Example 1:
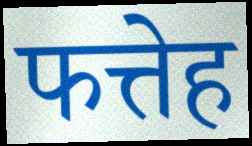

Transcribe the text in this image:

फत्तेह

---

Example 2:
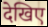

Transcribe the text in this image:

देखिए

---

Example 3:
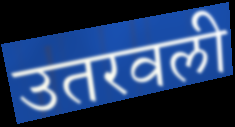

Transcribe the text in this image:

उतरवली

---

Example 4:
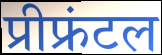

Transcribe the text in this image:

प्रीफ्रंटल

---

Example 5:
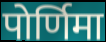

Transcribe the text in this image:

पोर्णिमा